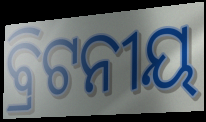
ବ୍ରିଟନୀୟ